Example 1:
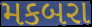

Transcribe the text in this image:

મકબરા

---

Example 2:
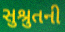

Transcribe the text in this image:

સુશ્રુતની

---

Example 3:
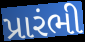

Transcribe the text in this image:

પ્રારંભી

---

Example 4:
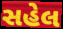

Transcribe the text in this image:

સહેલ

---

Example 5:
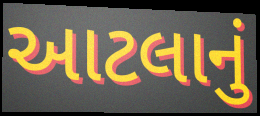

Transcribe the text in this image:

આટલાનું